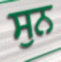
ਸੁਨ